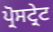
ਪ੍ਰੋਸਟ੍ਰੇਟ